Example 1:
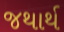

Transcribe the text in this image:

જથાર્થ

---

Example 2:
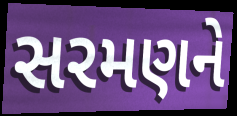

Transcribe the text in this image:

સરમણને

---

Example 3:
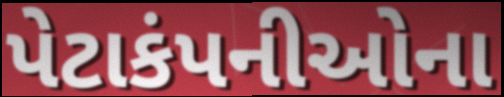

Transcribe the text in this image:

પેટાકંપનીઓના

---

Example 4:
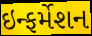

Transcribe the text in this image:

ઇન્ફર્મેશન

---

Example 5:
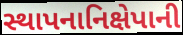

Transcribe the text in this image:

સ્થાપનાનિક્ષેપાની